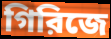
গিরিজে